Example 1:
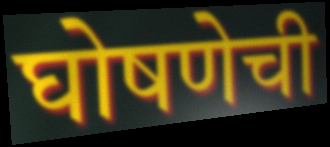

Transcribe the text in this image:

घोषणेची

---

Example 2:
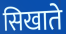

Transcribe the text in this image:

सिखाते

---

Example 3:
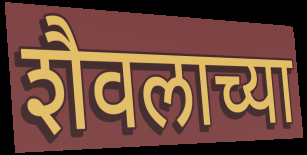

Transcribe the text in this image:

शैवलाच्या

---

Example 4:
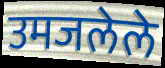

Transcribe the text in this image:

उमजलेले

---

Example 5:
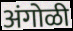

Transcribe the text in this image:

अंगोळी